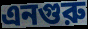
এনগুরু